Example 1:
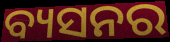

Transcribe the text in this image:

ବ୍ୟସନର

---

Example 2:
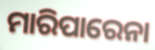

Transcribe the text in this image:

ମାରିପାରେନା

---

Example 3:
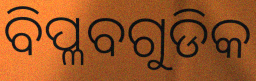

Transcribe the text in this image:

ବିପ୍ଳବଗୁଡିକ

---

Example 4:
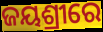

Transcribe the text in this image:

ଜୟଶ୍ରୀରେ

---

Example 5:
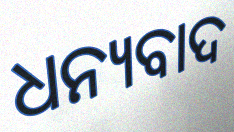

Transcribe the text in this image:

ଧନ୍ଯବାଦ